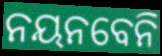
ନୟନବେନି